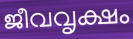
ജീവവൃക്ഷം